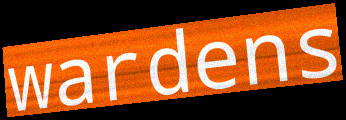
wardens